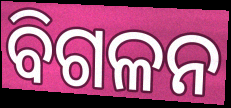
ବିଗଳନ